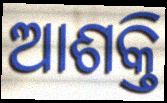
ଆଶକ୍ତି